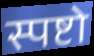
स्पष्टो